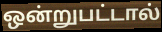
ஒன்றுபட்டால்